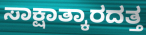
ಸಾಕ್ಷಾತ್ಕಾರದತ್ತ